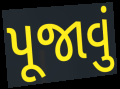
પૂજાવું